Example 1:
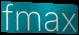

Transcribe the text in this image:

fmax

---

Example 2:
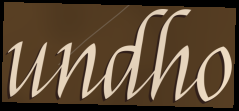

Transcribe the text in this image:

undho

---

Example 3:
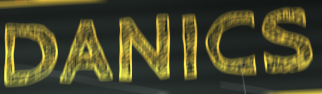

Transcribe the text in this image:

DANICS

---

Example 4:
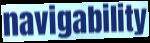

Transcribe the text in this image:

navigability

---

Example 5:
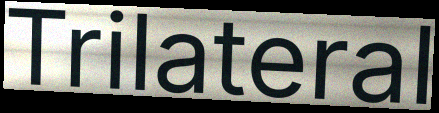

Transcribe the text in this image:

Trilateral